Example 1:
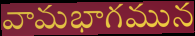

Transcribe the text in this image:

వామభాగమున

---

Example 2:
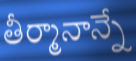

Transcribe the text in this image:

తీర్మానాన్నే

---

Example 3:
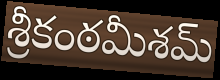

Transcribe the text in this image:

శ్రీకంఠమీశమ్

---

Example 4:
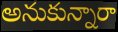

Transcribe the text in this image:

అనుకున్నారా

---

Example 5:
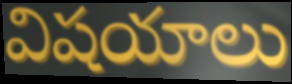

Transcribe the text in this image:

విషయాలు